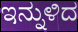
ಇನ್ನುಳಿದ